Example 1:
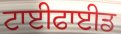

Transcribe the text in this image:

ਟਾਈਫਾਈਡ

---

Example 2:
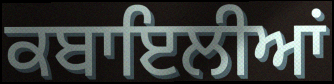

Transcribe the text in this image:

ਕਬਾਇਲੀਆਂ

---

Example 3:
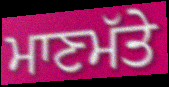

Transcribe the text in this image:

ਮਾਣਮੱਤੇ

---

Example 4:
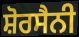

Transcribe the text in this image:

ਸ਼ੋਰਸੈਨੀ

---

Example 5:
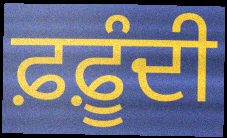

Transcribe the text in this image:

ਫ਼ਫ਼ੂੰਦੀ